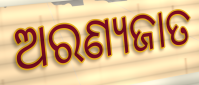
ଅରଣ୍ୟଜାତ